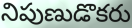
నిపుణుడొకరు